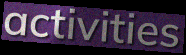
activities